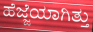
ಹೆಜ್ಜೆಯಾಗಿತ್ತು